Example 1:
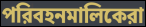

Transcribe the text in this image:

পরিবহনমালিকেরা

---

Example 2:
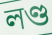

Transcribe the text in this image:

লণ্ড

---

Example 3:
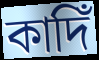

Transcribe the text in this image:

কাদিঁ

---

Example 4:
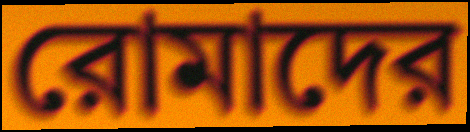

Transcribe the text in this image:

রোমাদের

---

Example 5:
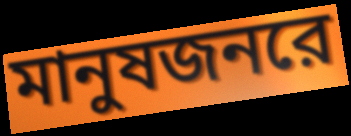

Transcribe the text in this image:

মানুষজনরে